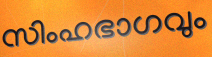
സിംഹഭാഗവും